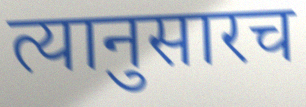
त्यानुसारच